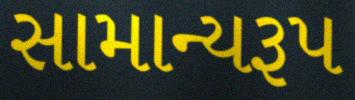
સામાન્યરૂપ